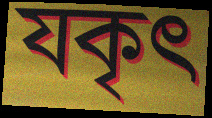
যকৃৎ